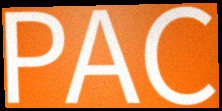
PAC